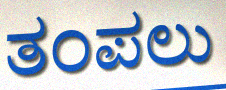
ತಂಪಲು